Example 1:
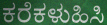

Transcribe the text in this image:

ಕರೆಕಳುಹಿಸಿ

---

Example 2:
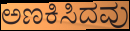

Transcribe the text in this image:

ಅಣಕಿಸಿದವು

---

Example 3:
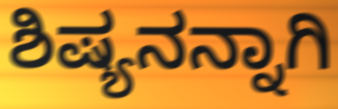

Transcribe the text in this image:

ಶಿಷ್ಯನನ್ನಾಗಿ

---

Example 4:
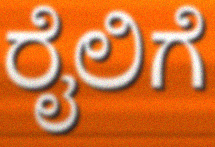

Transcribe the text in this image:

ರೈಲಿಗೆ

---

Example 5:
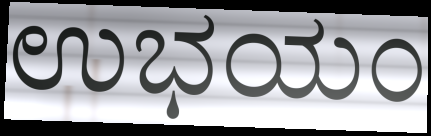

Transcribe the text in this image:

ಉಭಯಂ